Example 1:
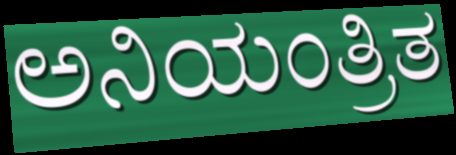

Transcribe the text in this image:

ಅನಿಯಂತ್ರಿತ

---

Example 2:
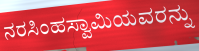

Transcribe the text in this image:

ನರಸಿಂಹಸ್ವಾಮಿಯವರನ್ನು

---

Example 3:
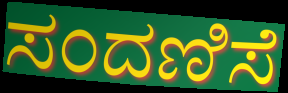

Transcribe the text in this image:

ಸಂದಣಿಸೆ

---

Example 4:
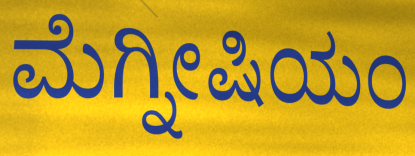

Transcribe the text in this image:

ಮೆಗ್ನೀಷಿಯಂ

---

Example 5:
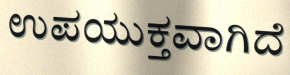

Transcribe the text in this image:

ಉಪಯುಕ್ತವಾಗಿದೆ